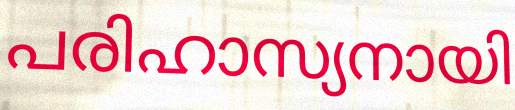
പരിഹാസ്യനായി